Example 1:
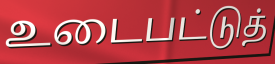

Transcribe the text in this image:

உடைபட்டுத்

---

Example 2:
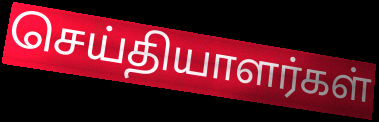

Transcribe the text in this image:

செய்தியாளர்கள்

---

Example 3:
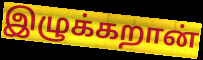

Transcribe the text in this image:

இழுக்கறான்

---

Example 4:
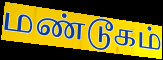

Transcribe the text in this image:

மண்டூகம்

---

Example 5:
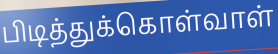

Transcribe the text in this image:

பிடித்துக்கொள்வாள்